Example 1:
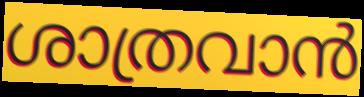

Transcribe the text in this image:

ശാത്രവാൻ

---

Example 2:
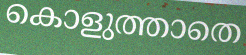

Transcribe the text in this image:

കൊളുത്താതെ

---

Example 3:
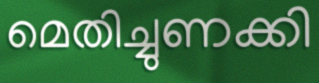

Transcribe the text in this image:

മെതിച്ചുണക്കി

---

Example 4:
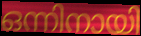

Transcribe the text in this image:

ഒന്നിനായി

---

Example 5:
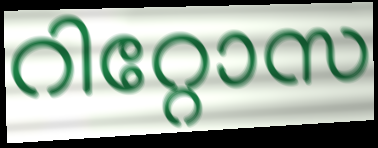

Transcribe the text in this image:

റിറ്റോസ